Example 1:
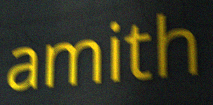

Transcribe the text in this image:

amith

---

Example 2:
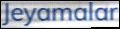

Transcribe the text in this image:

Jeyamalar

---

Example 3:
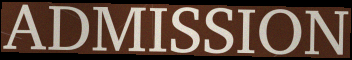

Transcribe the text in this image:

ADMISSION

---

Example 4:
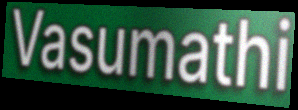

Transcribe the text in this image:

Vasumathi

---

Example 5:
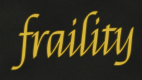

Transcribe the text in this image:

fraility